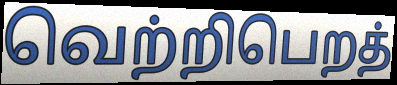
வெற்றிபெறத்